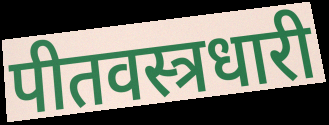
पीतवस्त्रधारी